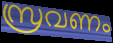
സ്രവണം